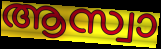
ആസ്വാ